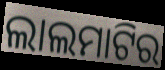
ଲାଲମାଟିର